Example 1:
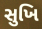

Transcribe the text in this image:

સુખિ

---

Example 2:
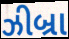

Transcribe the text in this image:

ઝીબ્રા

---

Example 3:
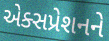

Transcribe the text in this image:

એક્સપ્રેશનને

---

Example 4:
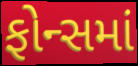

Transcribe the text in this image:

ફોન્સમાં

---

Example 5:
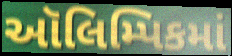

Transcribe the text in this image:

ઑલિમ્પિકમાં